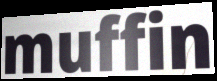
muffin